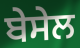
ਬੇਸੇਲ